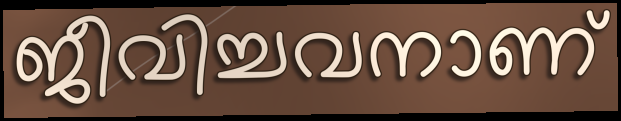
ജീവിച്ചവനാണ്